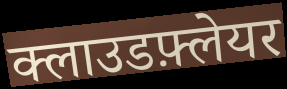
क्लाउडफ़्लेयर